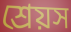
শ্রেয়স